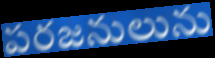
పరజనులును